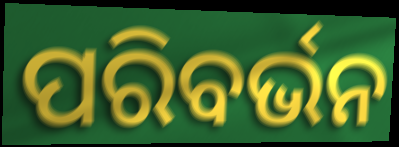
ପରିବର୍ଭନ